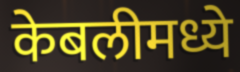
केबलीमध्ये